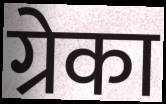
ग्रेका